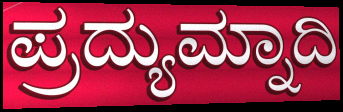
ಪ್ರದ್ಯುಮ್ನಾದಿ